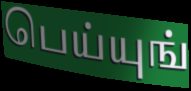
பெய்யுங்